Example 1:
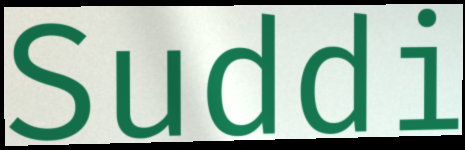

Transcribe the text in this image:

Suddi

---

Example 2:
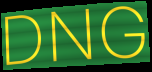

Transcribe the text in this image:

DNG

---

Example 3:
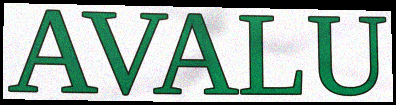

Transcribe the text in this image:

AVALU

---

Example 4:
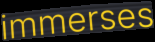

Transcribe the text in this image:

immerses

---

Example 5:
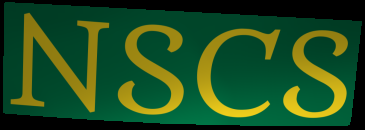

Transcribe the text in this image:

NSCS